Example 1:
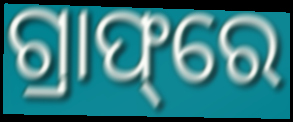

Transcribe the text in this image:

ଗ୍ରାଫ୍‌ରେ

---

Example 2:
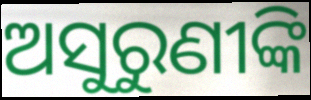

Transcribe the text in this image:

ଅସୁରୁଣୀଙ୍କି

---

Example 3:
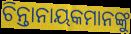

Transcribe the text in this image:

ଚିନ୍ତାନାୟକମାନଙ୍କୁ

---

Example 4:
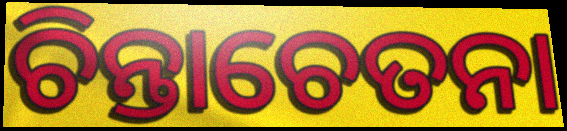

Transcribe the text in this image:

ଚିନ୍ତାଚେତନା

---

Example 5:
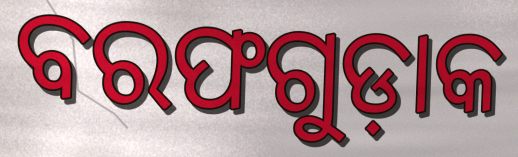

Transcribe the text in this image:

ବରଫଗୁଡ଼ାକ